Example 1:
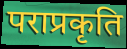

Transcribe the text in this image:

पराप्रकृति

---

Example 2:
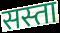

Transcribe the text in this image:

सस्‍ता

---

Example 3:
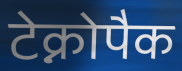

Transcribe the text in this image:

टेक्नोपैक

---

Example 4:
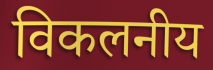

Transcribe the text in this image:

विकलनीय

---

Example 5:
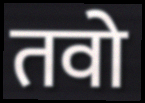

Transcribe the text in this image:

तवो